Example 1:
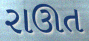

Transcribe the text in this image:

રાઊત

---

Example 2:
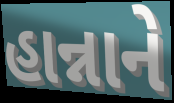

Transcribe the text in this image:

હાન્નાને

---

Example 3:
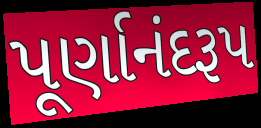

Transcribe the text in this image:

પૂર્ણાનંદરૂપ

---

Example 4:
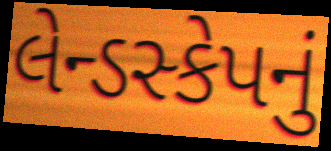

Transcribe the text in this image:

લેન્ડસ્કેપનું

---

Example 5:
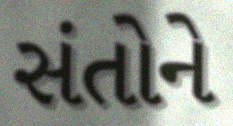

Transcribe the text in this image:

સંતોને